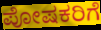
ಪೋಷಕರಿಗೆ